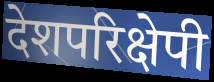
देशपरिक्षेपी